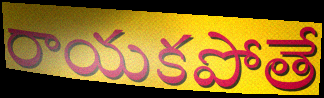
రాయకపోతే